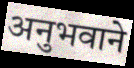
अनुभवाने